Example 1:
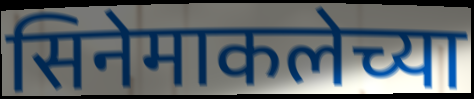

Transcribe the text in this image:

सिनेमाकलेच्या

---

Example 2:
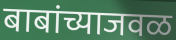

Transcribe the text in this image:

बाबांच्याजवळ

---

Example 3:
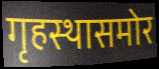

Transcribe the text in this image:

गृहस्थासमोर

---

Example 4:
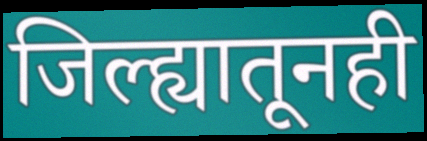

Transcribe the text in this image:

जिल्ह्यातूनही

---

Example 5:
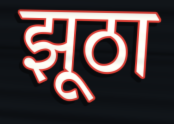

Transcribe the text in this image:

झूठा